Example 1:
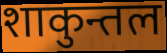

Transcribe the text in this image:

शाकुन्तल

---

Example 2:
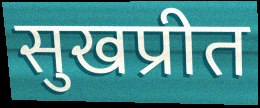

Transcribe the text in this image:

सुखप्रीत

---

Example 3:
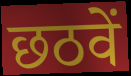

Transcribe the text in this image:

छठवें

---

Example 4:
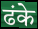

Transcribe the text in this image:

ढंके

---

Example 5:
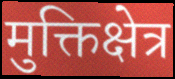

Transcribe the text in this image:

मुक्तिक्षेत्र